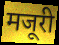
मजूरी